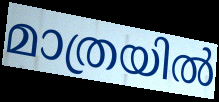
മാത്രയിൽ